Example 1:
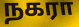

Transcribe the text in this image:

நகரா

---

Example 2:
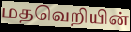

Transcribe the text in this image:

மதவெறியின்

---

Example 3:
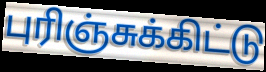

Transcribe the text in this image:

புரிஞ்சுக்கிட்டு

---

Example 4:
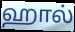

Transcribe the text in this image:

ஹால்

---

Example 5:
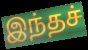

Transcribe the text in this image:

இந்தச்